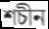
শচীন